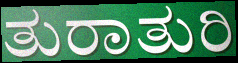
ತುರಾತುರಿ